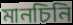
মানচিনি